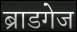
ब्राडगेज